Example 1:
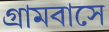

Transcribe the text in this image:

গ্রামবাসে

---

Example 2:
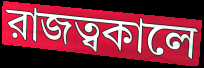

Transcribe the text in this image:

রাজত্বকালে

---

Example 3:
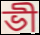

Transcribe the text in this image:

ভী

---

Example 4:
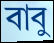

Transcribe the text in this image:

বাবু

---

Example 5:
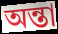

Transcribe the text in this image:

অন্তা